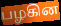
பழகின